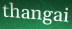
thangai